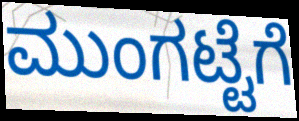
ಮುಂಗಟ್ಟೆಗೆ